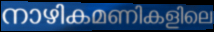
നാഴികമണികളിലെ